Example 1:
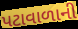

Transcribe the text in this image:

પટાવાળાની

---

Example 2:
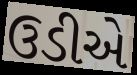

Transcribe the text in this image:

ઉડીએ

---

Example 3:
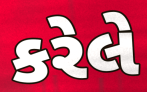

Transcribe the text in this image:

કરેલે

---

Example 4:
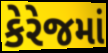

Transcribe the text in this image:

કેરેજમાં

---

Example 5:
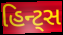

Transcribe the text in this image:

હિન્ટ્સ